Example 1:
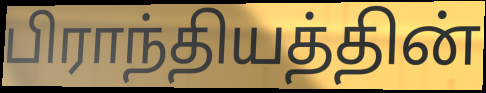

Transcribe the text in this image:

பிராந்தியத்தின்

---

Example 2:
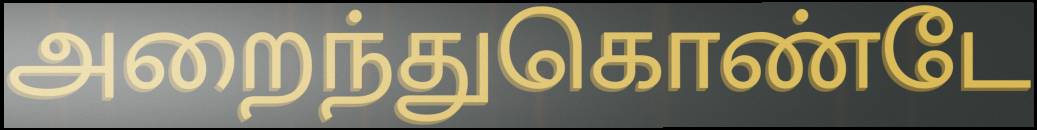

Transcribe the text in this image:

அறைந்துகொண்டே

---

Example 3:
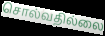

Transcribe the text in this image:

சொல்வதில்லை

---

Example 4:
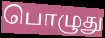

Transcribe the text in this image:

பொழுது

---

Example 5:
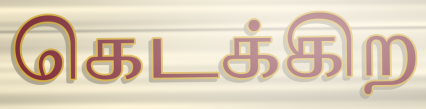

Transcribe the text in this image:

கெடக்கிற